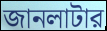
জানলাটার